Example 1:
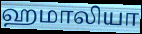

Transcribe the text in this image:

ஹமாலியா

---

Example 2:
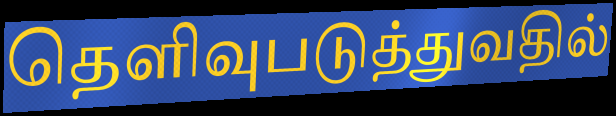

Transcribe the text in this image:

தெளிவுபடுத்துவதில்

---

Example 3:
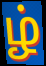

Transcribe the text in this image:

ழ்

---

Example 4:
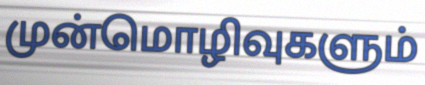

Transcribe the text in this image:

முன்மொழிவுகளும்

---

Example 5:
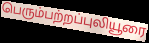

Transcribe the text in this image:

பெரும்பற்றப்புலியூரை